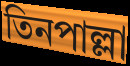
তিনপাল্লা